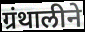
ग्रंथालीने